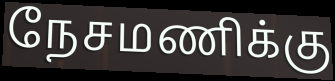
நேசமணிக்கு